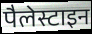
पैलेस्टाइन